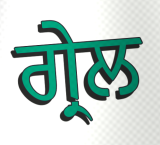
ਗ੍ਰੇਲ